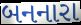
બનનારા